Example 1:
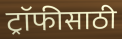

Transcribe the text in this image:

ट्रॉफीसाठी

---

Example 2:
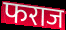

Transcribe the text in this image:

फराज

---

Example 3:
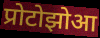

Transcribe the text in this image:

प्रोटोझोआ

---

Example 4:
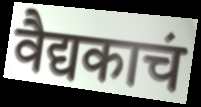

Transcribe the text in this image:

वैद्यकाचं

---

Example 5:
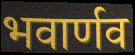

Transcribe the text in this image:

भवार्णव